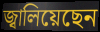
জ্বালিয়েছেন